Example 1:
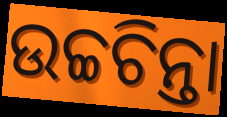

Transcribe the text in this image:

ଉଚ୍ଚଚିନ୍ତା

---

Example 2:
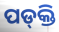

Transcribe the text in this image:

ପଡ୍‌କ୍ତି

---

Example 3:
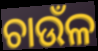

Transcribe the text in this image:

ଚାଉଁଳ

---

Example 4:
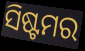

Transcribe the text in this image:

ସିଷ୍ଟମର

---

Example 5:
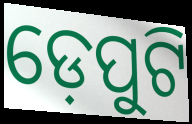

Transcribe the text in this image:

ଡ଼େପୁଟି